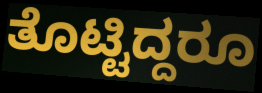
ತೊಟ್ಟಿದ್ದರೂ